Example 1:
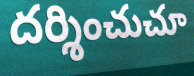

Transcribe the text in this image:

దర్శించుచూ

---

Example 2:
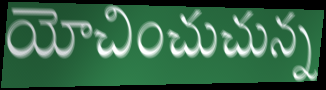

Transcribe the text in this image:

యోచించుచున్న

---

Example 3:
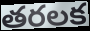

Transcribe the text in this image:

తరలక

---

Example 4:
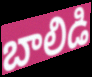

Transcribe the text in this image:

బాలిడి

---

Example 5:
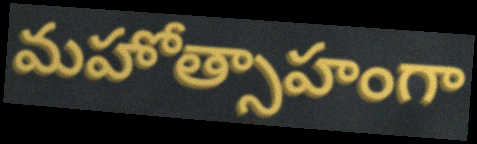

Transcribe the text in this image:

మహోత్సాహంగా